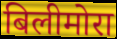
बिलीमोरा